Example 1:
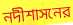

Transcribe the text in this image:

নদীশাসনের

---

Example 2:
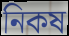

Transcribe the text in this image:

নিকষ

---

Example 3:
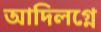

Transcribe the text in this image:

আদিলগ্নে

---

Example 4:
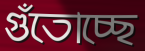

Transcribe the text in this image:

গুঁতোচ্ছে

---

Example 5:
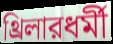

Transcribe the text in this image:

থ্রিলারধর্মী